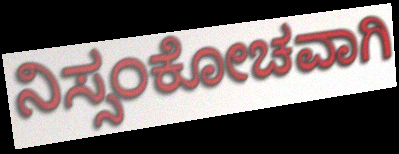
ನಿಸ್ಸಂಕೋಚವಾಗಿ